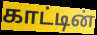
காட்டின்